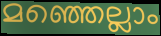
മഞ്ഞെല്ലാം